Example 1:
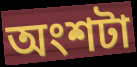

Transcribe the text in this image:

অংশটা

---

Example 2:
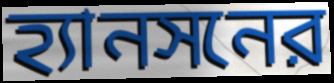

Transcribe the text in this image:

হ্যানসনের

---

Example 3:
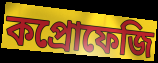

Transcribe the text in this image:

কপ্রোফেজি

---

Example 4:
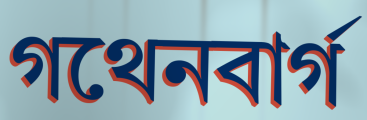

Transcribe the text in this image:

গথেনবার্গ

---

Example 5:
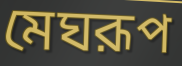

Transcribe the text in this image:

মেঘরূপ